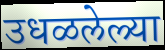
उधळलेल्या